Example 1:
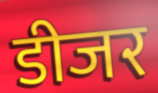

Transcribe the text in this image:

डीजर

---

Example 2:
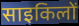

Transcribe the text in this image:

साइकिलों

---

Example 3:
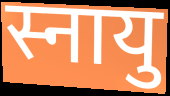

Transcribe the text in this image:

स्नायु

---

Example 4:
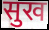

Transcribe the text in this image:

सुख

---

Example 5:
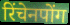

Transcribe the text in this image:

रिंचेनपोंग